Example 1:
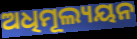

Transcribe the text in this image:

ଅଧିମୂଲ୍ୟୟନ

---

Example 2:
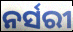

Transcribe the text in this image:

ନର୍ସରୀ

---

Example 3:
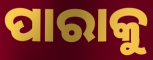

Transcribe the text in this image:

ପାରାକୁ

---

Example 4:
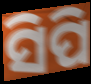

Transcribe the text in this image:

ସିପି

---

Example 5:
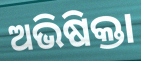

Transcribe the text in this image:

ଅଭିଷିକ୍ତା